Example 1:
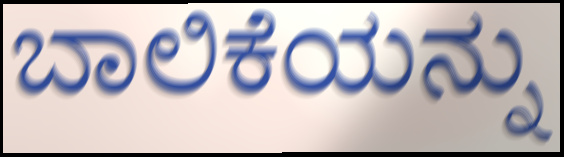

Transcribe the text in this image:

ಬಾಲಿಕೆಯನ್ನು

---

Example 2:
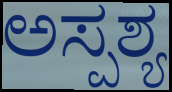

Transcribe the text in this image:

ಅಸ್ಪಶ್ಯ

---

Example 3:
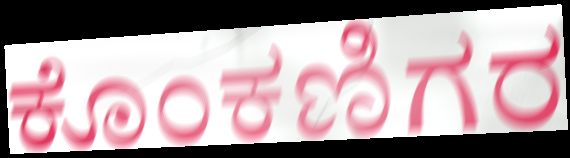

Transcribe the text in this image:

ಕೊಂಕಣಿಗರ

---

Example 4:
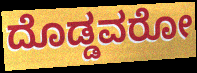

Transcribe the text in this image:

ದೊಡ್ಡವರೋ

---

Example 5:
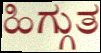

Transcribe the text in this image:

ಹಿಗ್ಗುತ